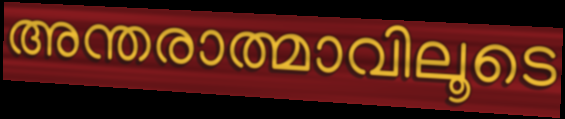
അന്തരാത്മാവിലൂടെ